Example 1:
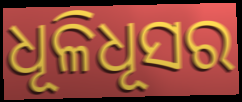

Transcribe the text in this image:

ଧୂଳିଧୂସର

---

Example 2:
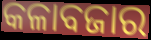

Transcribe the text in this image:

କଳାବଜାର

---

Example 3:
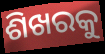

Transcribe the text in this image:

ଶିଖରକୁ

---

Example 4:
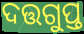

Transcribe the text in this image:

ଦତ୍ତଗୁପ୍ତ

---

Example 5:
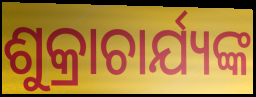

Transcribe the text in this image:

ଶୁକ୍ରାଚାର୍ଯ୍ୟଙ୍କ